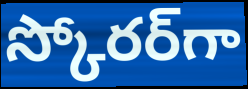
స్కోరర్‌గా